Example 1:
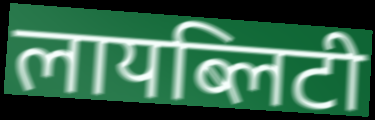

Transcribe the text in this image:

लायब्लिटी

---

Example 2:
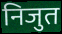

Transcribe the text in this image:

निजुत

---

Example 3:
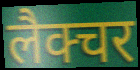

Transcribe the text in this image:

लैक्चर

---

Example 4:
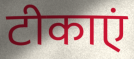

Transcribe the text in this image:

टीकाएं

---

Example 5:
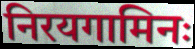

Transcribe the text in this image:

निरयगामिनः